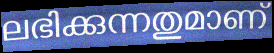
ലഭിക്കുന്നതുമാണ്